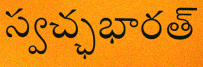
స్వచ్ఛభారత్